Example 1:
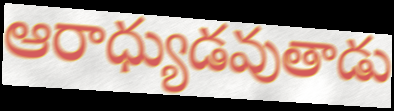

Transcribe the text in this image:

ఆరాధ్యుడవుతాడు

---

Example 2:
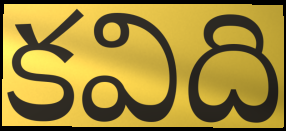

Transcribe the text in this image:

కవిది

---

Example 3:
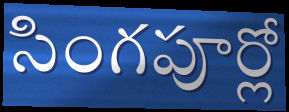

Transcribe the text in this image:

సింగపూర్లో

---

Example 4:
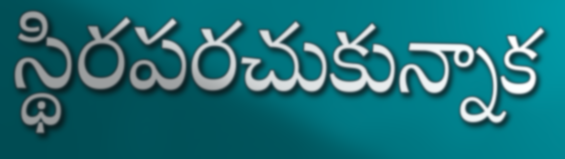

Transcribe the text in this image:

స్థిరపరచుకున్నాక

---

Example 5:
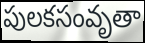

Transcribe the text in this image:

పులకసంవృతా